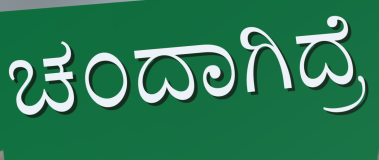
ಚಂದಾಗಿದ್ರೆ